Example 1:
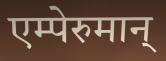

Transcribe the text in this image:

एम्पेरुमान्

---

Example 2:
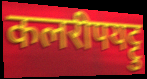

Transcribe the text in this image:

कलरीपयट्टु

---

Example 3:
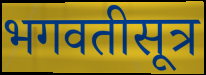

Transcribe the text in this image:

भगवतीसूत्र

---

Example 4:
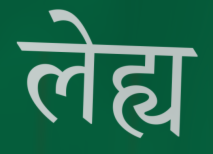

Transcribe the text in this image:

लेह्य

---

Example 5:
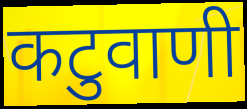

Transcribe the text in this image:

कटुवाणी